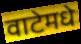
वाटेमधे